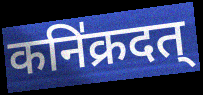
कनि॑क्रदत्